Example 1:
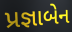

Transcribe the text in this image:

પ્રજ્ઞાબેન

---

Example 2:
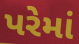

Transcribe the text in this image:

પરેમાં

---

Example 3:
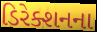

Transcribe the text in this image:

ડિરેક્શનના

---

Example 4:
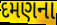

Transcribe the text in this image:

દમણના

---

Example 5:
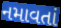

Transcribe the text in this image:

નમાવતાં